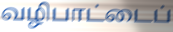
வழிபாட்டைப்